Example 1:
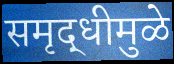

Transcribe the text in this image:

समृद्धीमुळे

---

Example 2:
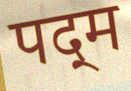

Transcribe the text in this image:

पद्‌म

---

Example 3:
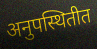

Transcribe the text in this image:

अनुपस्थितीत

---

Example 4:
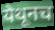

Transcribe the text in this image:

येथूनच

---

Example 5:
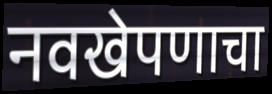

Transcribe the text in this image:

नवखेपणाचा